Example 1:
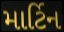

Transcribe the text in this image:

માર્ટિન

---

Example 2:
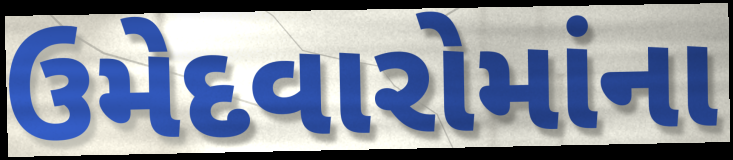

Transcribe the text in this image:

ઉમેદવારોમાંના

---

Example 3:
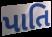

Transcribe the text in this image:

પાતિ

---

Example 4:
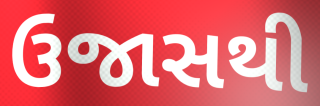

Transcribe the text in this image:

ઉજાસથી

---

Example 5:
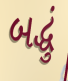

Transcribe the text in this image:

બદ્ધું